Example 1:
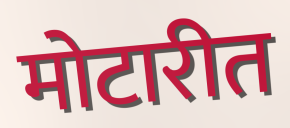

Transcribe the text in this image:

मोटारीत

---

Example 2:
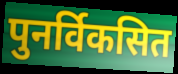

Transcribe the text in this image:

पुनर्विकसित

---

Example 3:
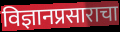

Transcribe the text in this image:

विज्ञानप्रसाराचा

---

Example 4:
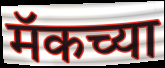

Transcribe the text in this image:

मॅकच्या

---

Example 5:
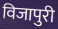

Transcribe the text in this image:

विजापुरी